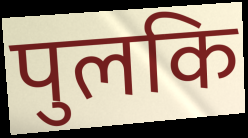
पुलकि